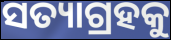
ସତ୍ୟାଗ୍ରହକୁ